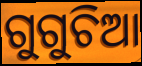
ଗୁଗୁଚିଆ